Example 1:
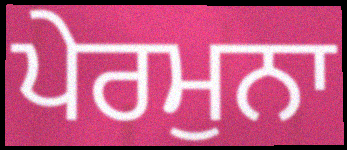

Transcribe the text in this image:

ਪੇਰਮੁਨਾ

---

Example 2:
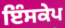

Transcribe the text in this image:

ਇੰਸਕੇਪ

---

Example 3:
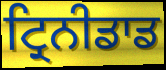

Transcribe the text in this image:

ਟ੍ਰਿਨੀਡਾਡ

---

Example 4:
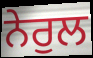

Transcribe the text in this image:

ਨੇਰੁਲ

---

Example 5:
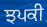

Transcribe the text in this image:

ਝਪਕੀ